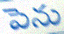
పెను